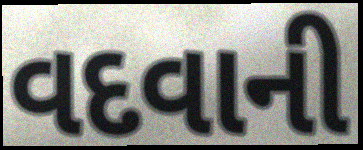
વદવાની